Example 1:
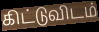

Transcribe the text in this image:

கிட்டுவிடம்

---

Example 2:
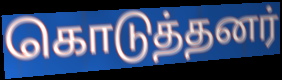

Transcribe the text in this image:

கொடுத்தனர்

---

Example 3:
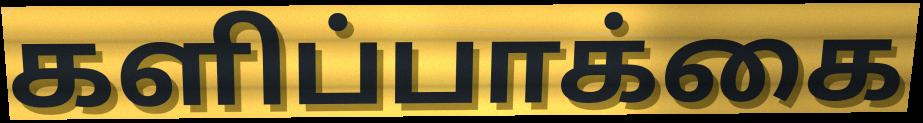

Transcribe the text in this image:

களிப்பாக்கை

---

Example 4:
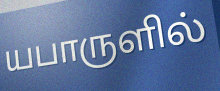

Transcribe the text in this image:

யபாருளில்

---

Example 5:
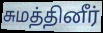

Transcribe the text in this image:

சுமத்தினீர்